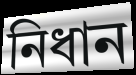
নিধান